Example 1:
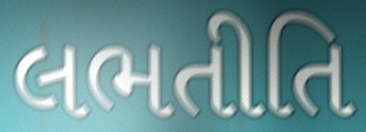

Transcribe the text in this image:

લભતીતિ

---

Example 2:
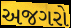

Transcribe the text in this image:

અજગરો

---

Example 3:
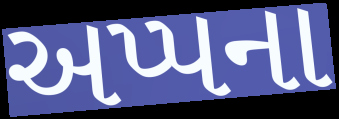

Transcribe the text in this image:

અપ્પના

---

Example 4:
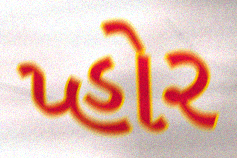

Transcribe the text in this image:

પ્હોર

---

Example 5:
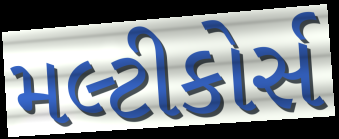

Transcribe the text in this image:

મલ્ટીકોર્સ